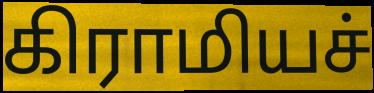
கிராமியச்